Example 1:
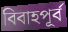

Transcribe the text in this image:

বিবাহপূর্ব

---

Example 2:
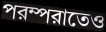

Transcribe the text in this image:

পরম্পরাতেও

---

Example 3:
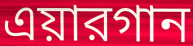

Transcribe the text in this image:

এয়ারগান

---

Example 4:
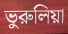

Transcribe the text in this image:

ভুরুলিয়া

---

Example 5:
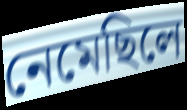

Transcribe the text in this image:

নেমেছিলে